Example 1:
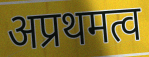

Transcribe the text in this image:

अप्रथमत्व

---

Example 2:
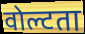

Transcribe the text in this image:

वोल्टता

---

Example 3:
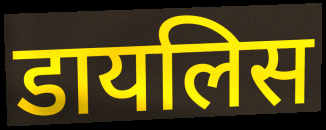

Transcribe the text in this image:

डायलिस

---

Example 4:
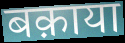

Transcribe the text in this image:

बक़ाया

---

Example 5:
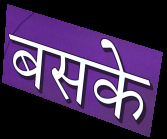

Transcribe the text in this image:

बसके